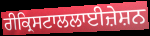
ਰੀਕ੍ਰਿਸਟਾਲਲਾਈਜ਼ੇਸ਼ਨ